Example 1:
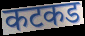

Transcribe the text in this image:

कटकड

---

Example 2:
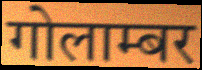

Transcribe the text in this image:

गोलाम्बर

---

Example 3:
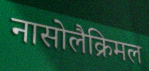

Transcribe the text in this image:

नासोलैक्रिमल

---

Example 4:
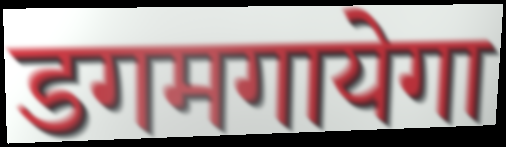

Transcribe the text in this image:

डगमगायेगा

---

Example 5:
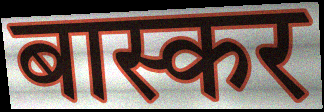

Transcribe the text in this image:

बास्कर